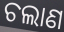
ଚଲାଣ